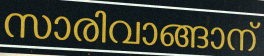
സാരിവാങ്ങാന്